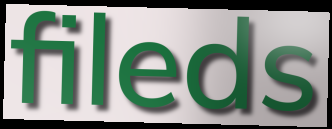
fileds